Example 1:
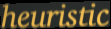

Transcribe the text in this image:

heuristic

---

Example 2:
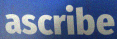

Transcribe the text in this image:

ascribe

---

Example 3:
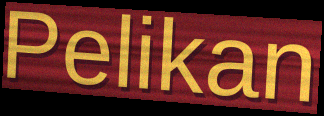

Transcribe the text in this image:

Pelikan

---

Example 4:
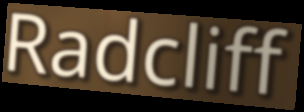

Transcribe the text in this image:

Radcliff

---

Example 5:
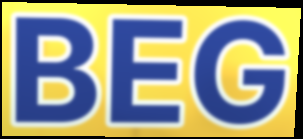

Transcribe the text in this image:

BEG